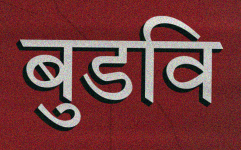
बुडवि